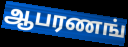
ஆபரணங்